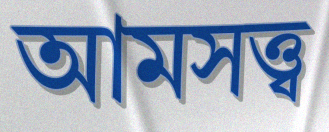
আমসত্ত্ব